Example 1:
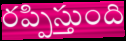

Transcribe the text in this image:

రప్పిస్తుంది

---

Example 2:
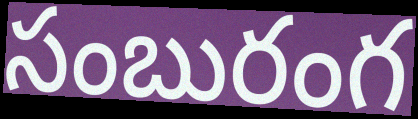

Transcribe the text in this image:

సంబురంగ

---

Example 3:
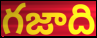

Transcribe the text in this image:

గజాది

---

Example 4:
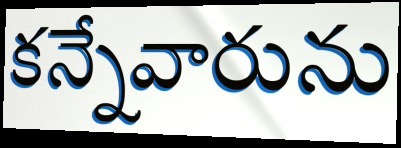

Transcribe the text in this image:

కన్నేవారును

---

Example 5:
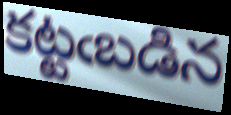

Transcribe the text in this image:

కట్టఁబడిన